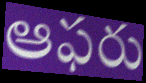
ఆఫరు